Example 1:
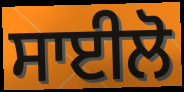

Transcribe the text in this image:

ਸਾਈਲੋ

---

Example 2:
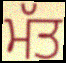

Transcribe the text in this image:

ਮੱਤ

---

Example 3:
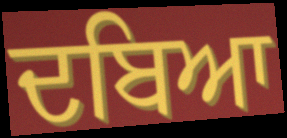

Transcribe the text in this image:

ਦਬਿਆ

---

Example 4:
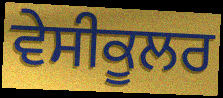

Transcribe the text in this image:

ਵੇਸੀਕੂਲਰ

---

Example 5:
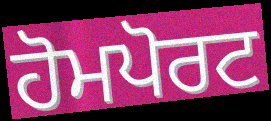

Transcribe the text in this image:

ਹੋਮਪੋਰਟ